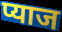
प्याज